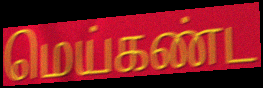
மெய்கண்ட